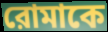
রোমাকে